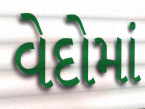
વેદોમાં